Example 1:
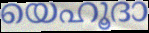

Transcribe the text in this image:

യെഹൂദാ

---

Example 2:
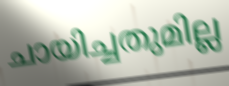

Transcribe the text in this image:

ചായിച്ചതുമില്ല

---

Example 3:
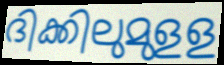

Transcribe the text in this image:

ദിക്കിലുമുളള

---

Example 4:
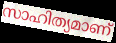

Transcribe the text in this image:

സാഹിത്യമാണ്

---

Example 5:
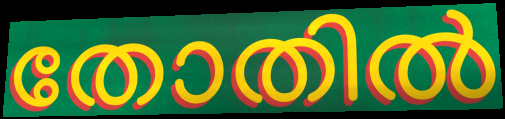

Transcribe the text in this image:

തോതിൽ